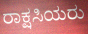
ರಾಕ್ಷಸಿಯರು